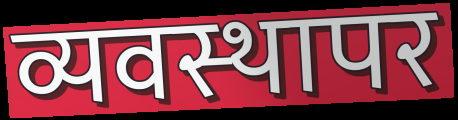
व्यवस्थापर